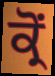
ਕ੍ਰੋਂ